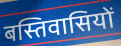
बस्तिवासियों